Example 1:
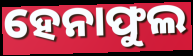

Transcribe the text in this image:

ହେନାଫୁଲ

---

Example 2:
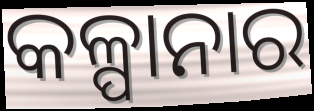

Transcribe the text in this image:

କଳ୍ପାନାର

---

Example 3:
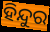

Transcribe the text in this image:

ହିନ୍ଦୁର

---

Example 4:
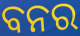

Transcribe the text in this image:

ବନର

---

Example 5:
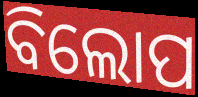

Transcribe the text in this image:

ବିଲୋପ